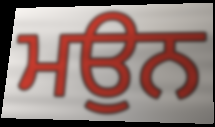
ਮਉਨ